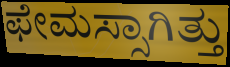
ಫೇಮಸ್ಸಾಗಿತ್ತು